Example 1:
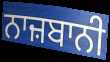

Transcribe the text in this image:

ਨਾਜ਼ਬਾਨੀ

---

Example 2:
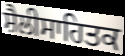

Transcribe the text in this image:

ਸ਼ੈਲੀਸਾਹਿਤਕ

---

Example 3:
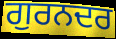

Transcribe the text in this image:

ਗੁਰਨਦਰ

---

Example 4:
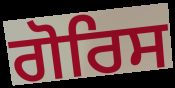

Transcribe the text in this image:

ਗੋਰਿਸ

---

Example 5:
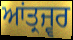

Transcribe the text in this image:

ਆਂਤ੍ਰਜ੍ਵਰ